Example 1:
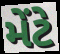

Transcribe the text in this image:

મેંટે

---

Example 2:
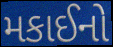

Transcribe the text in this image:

મકાઈનો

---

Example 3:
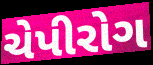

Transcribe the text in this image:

ચેપીરોગ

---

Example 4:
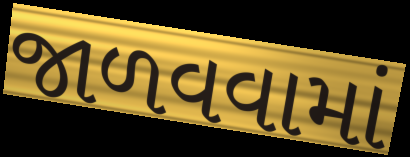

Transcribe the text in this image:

જાળવવામાં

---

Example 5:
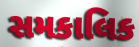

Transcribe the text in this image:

સમકાલિક